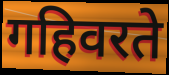
गहिवरते